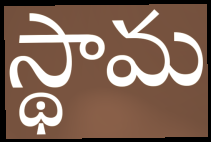
స్థామ